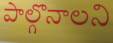
పాల్గొనాలని